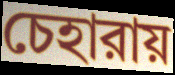
চেহারায়